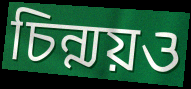
চিন্ময়ও